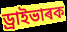
ড্ৰাইভাৰক